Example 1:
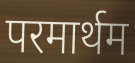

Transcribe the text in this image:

परमार्थम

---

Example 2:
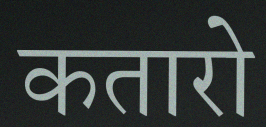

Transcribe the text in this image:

कतारो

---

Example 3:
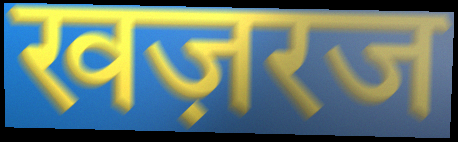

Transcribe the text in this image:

खज़रज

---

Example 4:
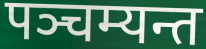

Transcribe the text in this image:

पञ्चम्यन्त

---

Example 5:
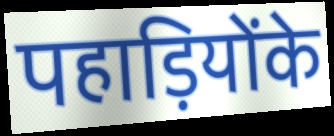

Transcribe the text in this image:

पहाड़ियोंके